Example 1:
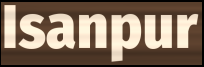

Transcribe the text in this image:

Isanpur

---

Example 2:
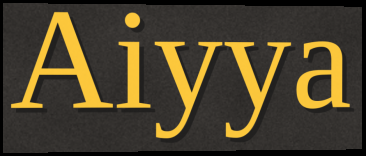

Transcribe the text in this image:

Aiyya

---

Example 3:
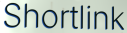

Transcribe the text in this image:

Shortlink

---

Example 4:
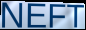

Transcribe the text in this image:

NEFT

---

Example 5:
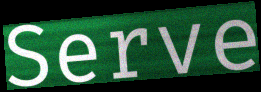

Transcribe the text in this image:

Serve